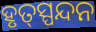
ହୃତ୍‍ସ୍ପନ୍ଦନ